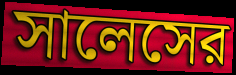
সালেসের